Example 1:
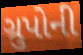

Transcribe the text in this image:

ગ્રુપોની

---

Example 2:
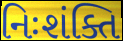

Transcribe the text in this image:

નિઃશંક્તિ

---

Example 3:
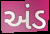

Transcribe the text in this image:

અંડ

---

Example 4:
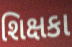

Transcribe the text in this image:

શિક્ષકા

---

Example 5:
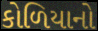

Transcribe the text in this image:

કોળિયાનો